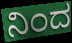
ನಿಂದ